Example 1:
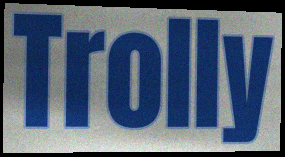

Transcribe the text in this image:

Trolly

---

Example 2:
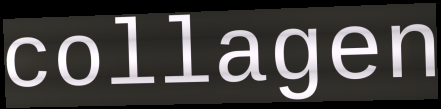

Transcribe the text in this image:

collagen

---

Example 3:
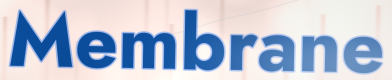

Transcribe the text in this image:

Membrane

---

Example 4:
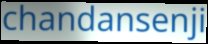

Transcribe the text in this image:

chandansenji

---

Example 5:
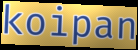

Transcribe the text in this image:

koipan